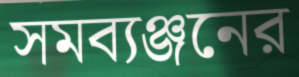
সমব্যঞ্জনের